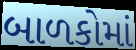
બાળકોમાં